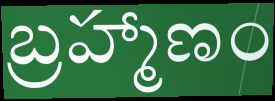
బ్రహ్మాణం